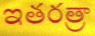
ఇతరత్రా